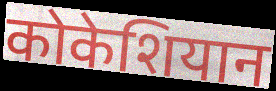
कोकेशियान